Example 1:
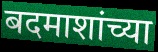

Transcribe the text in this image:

बदमाशांच्या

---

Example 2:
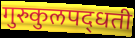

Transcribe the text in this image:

गुरुकुलपद्धती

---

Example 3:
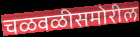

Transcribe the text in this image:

चळवळीसमोरील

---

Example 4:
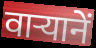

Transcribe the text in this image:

वार्‍यानें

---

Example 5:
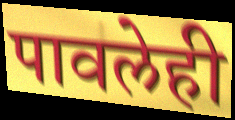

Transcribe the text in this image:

पावलेही